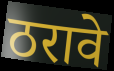
ठरावे